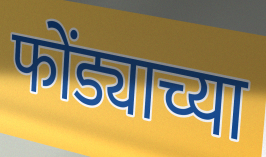
फोंड्याच्या